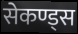
सेकण्ड्स